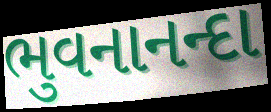
ભુવનાનન્દા